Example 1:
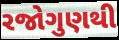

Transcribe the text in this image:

રજોગુણથી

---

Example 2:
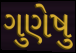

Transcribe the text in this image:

ગુણેષુ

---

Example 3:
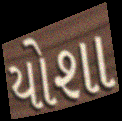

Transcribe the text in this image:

યોશા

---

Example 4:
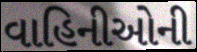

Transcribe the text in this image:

વાહિનીઓની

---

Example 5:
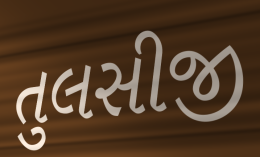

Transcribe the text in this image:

તુલસીજી